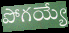
పోగయ్యే